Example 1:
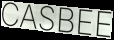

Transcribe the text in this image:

CASBEE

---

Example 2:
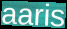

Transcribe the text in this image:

aaris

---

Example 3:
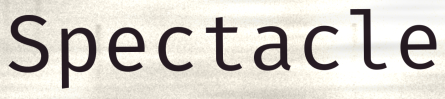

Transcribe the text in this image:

Spectacle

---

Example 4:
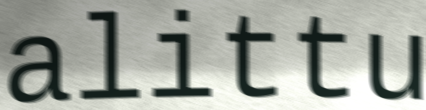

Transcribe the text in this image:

alittu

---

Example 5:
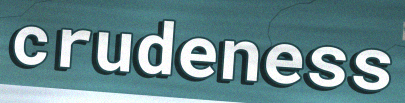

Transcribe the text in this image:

crudeness